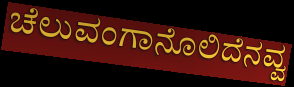
ಚೆಲುವಂಗಾನೊಲಿದೆನವ್ವ